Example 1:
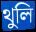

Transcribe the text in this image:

থুলি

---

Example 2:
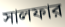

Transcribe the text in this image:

সালফার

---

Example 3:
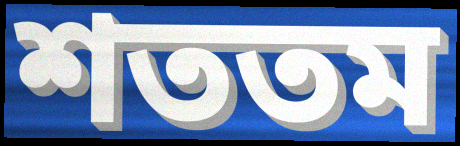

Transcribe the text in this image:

শততম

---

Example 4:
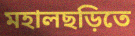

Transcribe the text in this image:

মহালছড়িতে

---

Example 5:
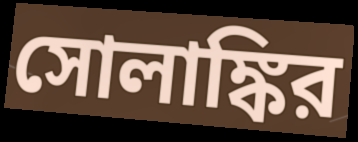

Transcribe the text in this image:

সোলাঙ্কির